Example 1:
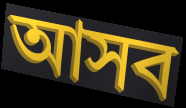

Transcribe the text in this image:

আসব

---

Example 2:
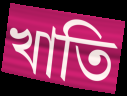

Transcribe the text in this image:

খাতি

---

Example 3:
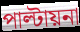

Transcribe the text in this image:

পাল্টায়না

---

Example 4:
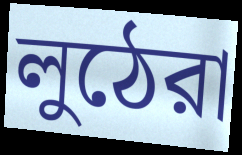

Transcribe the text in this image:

লুঠেরা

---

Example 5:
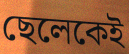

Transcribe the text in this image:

ছেলেকেই